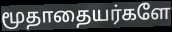
மூதாதையர்களே